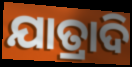
ଯାତ୍ରାଦି